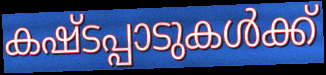
കഷ്ടപ്പാടുകൾക്ക്